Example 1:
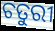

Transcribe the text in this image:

ଚତୁରୀ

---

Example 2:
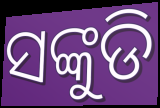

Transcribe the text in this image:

ସଙ୍କୁଡି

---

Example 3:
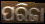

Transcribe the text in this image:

ପରିଜା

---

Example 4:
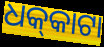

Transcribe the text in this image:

ଧକ୍‌କାଟା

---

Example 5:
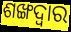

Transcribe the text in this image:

ଶଙ୍ଖଦ୍ୱାର